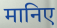
मानिए